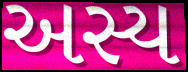
અસ્ય